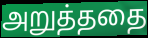
அறுத்ததை